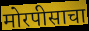
मोरपीसाचा